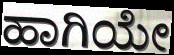
ಹಾಗಿಯೇ